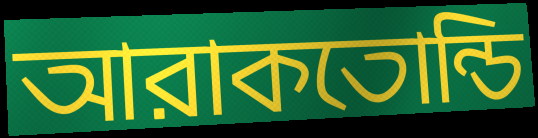
আরাকতোন্ডি